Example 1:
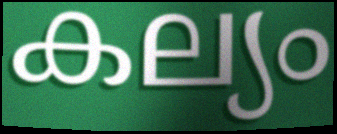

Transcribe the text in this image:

കല്യം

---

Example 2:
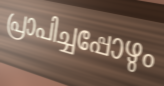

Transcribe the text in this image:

പ്രാപിച്ചപ്പോഴും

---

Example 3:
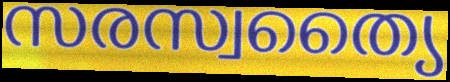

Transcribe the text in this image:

സരസ്വത്യൈ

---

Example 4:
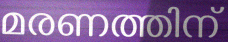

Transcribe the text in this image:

മരണത്തിന്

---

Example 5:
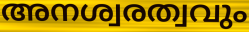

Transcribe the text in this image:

അനശ്വരത്വവും